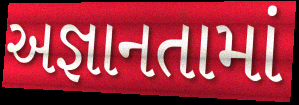
અજ્ઞાનતામાં